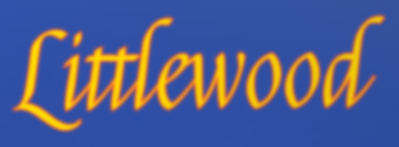
Littlewood